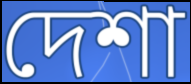
দেশা